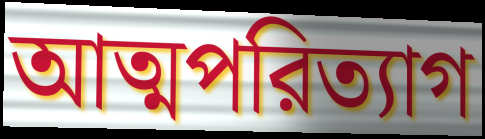
আত্মপরিত্যাগ